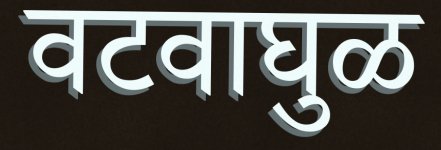
वटवाघुळ